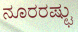
ನೂರರಷ್ಟು